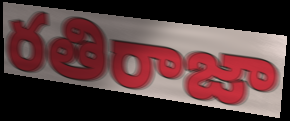
రతిరాజా